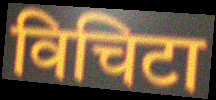
विचिटा